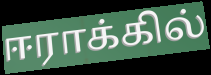
ஈராக்கில்